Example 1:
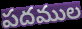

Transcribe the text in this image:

పదముల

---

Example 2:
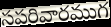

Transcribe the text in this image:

సపరివారముగ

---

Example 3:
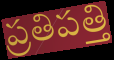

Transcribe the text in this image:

ప్రతిపత్తి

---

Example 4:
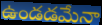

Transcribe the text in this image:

ఉండడమేనా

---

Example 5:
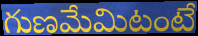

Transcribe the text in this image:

గుణమేమిటంటే